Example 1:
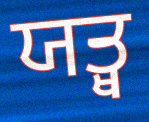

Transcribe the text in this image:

ਯਤ੍ਥ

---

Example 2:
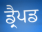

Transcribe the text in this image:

ਡ੍ਰੈਪਡ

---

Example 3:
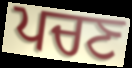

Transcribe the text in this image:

ਪਚਣ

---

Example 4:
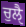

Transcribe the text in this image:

ਚੁਲੈੑ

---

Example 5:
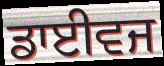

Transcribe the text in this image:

ਡਾਈਵਜ